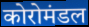
कोरोमंडल